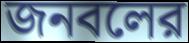
জনবলের